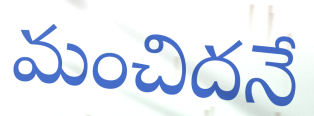
మంచిదనే